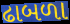
ઢાબળા